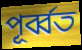
পূৰ্ব্বত